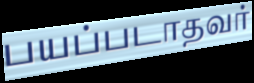
பயப்படாதவர்